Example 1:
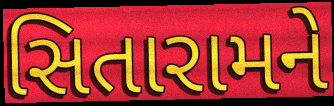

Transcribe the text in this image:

સિતારામને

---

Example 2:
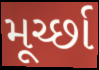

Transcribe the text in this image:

મૂર્ચ્છા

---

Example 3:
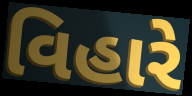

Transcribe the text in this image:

વિહારે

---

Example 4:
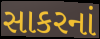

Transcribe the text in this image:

સાકરનાં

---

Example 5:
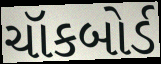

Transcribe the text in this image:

ચૉકબોર્ડ